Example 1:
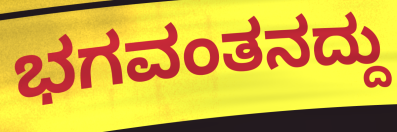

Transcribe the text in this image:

ಭಗವಂತನದ್ದು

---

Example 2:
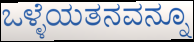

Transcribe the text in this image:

ಒಳ್ಳೆಯತನವನ್ನೂ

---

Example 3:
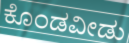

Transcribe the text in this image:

ಕೊಂಡವೀಡು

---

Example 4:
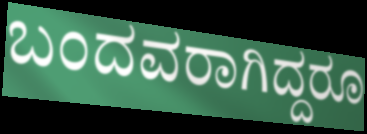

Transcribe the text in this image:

ಬಂದವರಾಗಿದ್ದರೂ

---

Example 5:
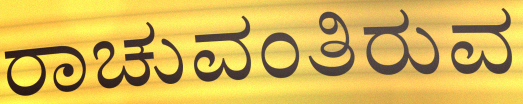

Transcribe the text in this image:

ರಾಚುವಂತಿರುವ